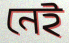
নেই